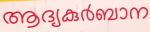
ആദ്യകുർബാന